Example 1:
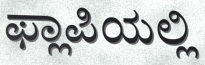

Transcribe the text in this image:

ಫ್ಲಾಪಿಯಲ್ಲಿ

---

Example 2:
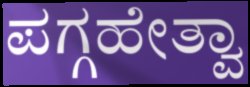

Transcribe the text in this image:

ಪಗ್ಗಹೇತ್ವಾ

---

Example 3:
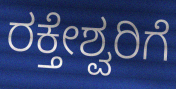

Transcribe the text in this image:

ರಕ್ತೇಶ್ವರಿಗೆ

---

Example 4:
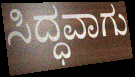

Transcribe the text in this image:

ಸಿದ್ಧವಾಗು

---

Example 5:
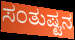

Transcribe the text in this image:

ಸಂತುಷ್ಟನ